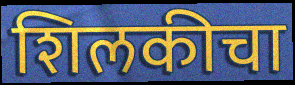
शिलकीचा